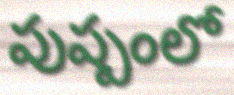
పుష్పంలో